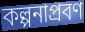
কল্পনাপ্রবণ